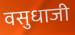
वसुधाजी